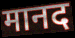
मानद